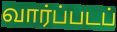
வார்ப்படப்